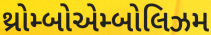
થ્રોમ્બોએમ્બોલિઝમ